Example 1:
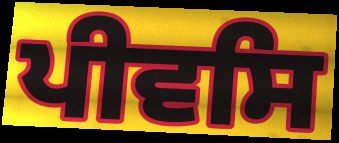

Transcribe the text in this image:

ਪੀਵਸਿ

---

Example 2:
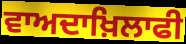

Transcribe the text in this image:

ਵਾਅਦਾਖ਼ਿਲਾਫੀ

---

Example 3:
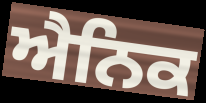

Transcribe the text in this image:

ਐਨਿਕ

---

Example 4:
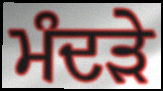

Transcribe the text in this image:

ਮੰਦੜੇ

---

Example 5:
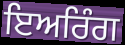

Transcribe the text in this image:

ਇਅਰਿੰਗ